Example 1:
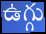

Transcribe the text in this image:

ఉగ్గు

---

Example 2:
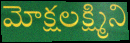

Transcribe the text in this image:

మోక్షలక్ష్మిని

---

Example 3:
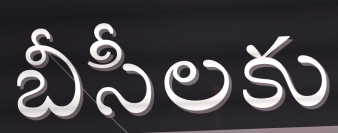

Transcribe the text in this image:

బీసీలకు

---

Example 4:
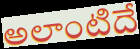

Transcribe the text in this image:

అలాంటిదే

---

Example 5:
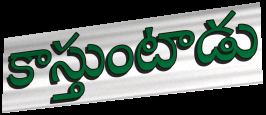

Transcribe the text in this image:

కాస్తుంటాడు